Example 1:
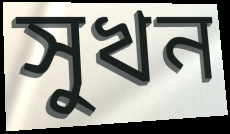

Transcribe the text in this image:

সুখন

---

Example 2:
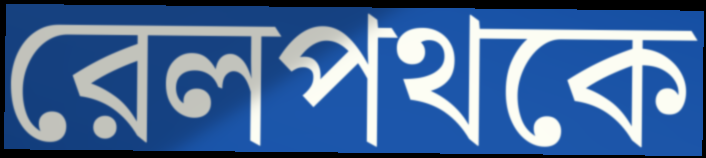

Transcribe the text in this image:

রেলপথকে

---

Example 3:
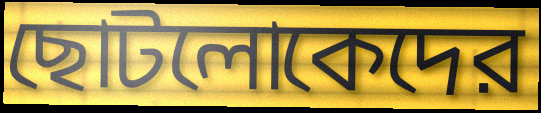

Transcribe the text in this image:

ছোটলোকেদের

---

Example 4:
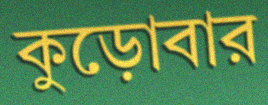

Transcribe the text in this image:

কুড়োবার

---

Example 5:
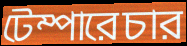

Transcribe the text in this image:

টেম্পারেচার